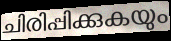
ചിരിപ്പിക്കുകയും